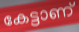
കേട്ടാണ്